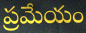
ప్రమేయం